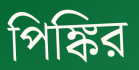
পিঙ্কির